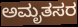
ಅಮೃತಸರ